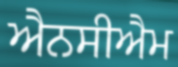
ਐਨਸੀਐਮ